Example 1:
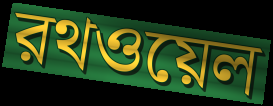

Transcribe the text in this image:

রথওয়েল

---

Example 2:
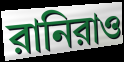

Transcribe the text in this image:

রানিরাও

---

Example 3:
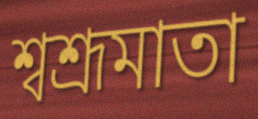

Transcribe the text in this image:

শ্বশ্রূমাতা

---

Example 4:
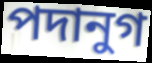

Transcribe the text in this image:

পদানুগ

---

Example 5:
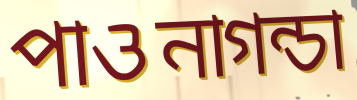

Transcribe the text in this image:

পাওনাগন্ডা